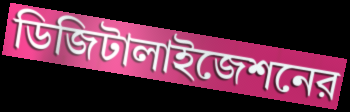
ডিজিটালাইজেশনের